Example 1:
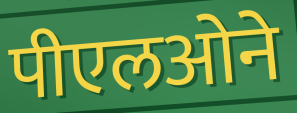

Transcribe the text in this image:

पीएलओने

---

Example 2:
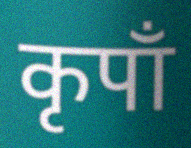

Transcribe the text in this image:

कृपाँ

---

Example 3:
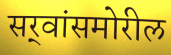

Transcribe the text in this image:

सर्वांसमोरील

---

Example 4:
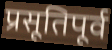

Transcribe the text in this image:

प्रसूतिपूर्व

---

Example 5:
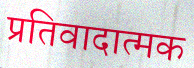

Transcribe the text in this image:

प्रतिवादात्मक